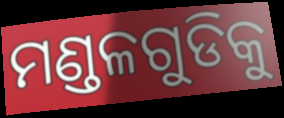
ମଣ୍ଡଳଗୁଡିକୁ